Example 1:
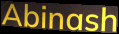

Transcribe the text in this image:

Abinash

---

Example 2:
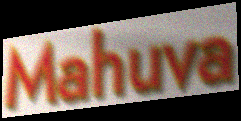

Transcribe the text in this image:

Mahuva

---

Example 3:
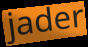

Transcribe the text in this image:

jader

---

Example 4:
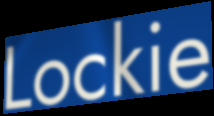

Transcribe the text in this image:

Lockie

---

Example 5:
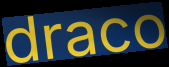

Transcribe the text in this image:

draco